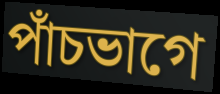
পাঁচভাগে